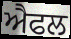
ਐਫਲ